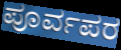
ಪೂರ್ವಪರ